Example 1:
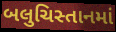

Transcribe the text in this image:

બલુચિસ્તાનમાં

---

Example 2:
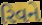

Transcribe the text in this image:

રિવને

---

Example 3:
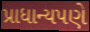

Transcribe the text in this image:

પ્રાધાન્યપણે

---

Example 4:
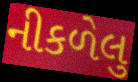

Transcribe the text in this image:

નીકળેલુ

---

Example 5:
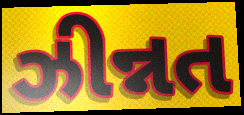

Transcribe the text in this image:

ઝીન્નત